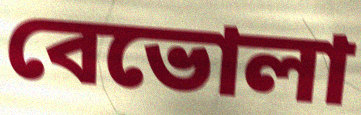
বেভোলা